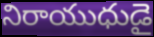
నిరాయుధుడై